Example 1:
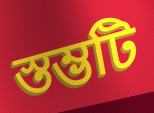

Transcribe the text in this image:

স্তম্ভটি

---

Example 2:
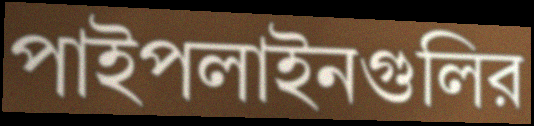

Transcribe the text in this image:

পাইপলাইনগুলির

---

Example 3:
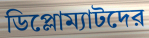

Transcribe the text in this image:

ডিপ্লোম্যাটদের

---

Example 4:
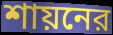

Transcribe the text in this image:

শায়নের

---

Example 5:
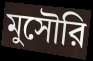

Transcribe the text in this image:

মুসৌরি